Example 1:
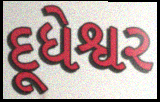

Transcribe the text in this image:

દૂધેશ્વર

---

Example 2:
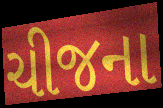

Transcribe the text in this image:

ચીજના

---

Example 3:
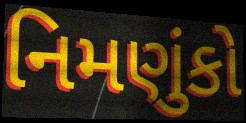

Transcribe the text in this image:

નિમણુંકો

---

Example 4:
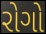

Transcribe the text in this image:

રોગો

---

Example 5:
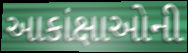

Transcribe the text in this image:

આકાંક્ષાઓની